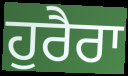
ਹੁਰੈਰਾ